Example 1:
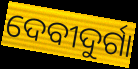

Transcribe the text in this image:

ଦେବୀଦୁର୍ଗା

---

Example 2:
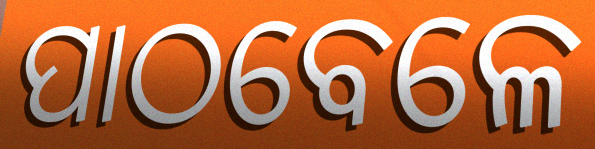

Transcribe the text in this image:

ପାଠବେଳେ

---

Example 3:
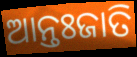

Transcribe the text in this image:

ଆନ୍ତଃଜାତି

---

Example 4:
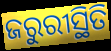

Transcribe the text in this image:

ଜରୁରୀସ୍ଥିତି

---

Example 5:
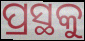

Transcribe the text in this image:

ପ୍ରସ୍ଥକୁ